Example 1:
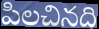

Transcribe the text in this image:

పిలచినది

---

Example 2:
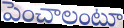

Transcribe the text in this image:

పెంచాలంటూ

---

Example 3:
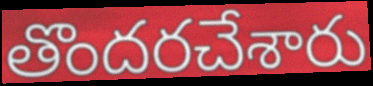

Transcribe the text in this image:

తొందరచేశారు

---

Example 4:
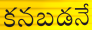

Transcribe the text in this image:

కనబడనే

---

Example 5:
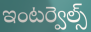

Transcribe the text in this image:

ఇంటర్వెల్స్